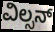
ವಿಲ್ಸನ್